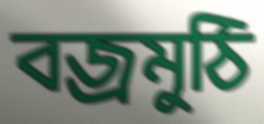
বজ্রমুঠি